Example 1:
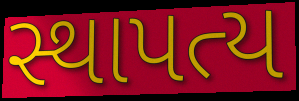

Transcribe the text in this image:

સ્થાપત્ય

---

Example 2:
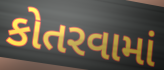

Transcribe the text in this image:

કોતરવામાં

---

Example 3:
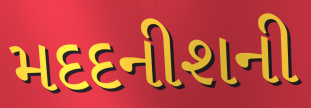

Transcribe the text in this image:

મદદનીશની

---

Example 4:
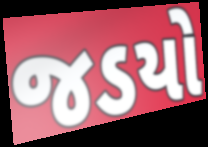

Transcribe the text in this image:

જડયો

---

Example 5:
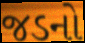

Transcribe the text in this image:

જડનો